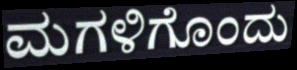
ಮಗಳಿಗೊಂದು